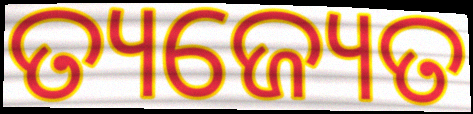
ତ୍ୟଜ୍ୟେତ